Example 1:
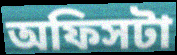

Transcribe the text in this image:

অফিসটা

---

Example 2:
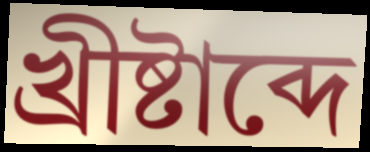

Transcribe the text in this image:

খ্রীষ্টাব্দে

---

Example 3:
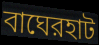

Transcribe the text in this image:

বাঘেরহাট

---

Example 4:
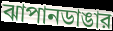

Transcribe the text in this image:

ঝাপানডাঙার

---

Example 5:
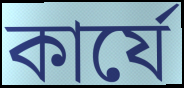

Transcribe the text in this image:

কার্যে